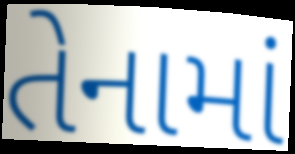
તેનામાં